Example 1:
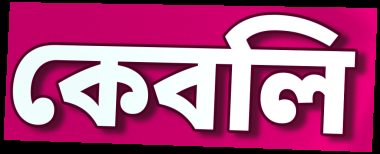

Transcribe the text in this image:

কেবলি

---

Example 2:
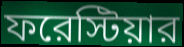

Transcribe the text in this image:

ফরেস্টিয়ার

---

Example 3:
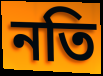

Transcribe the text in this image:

নতি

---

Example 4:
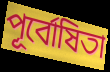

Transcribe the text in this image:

পূর্বোষিতা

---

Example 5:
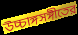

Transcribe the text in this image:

উচ্চাঙ্গসঙ্গীতের